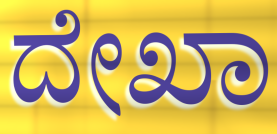
ದೇಖಾ